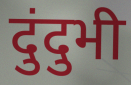
दुंदुभी